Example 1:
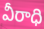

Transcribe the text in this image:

వీరాధి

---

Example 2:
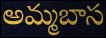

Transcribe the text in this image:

అమ్మబాస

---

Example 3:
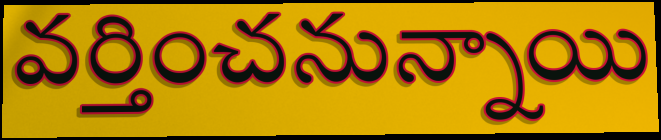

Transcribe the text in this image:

వర్తించనున్నాయి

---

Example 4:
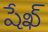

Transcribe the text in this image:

షేఖ్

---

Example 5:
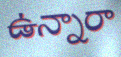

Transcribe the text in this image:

ఉన్నారా